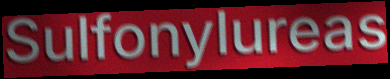
Sulfonylureas